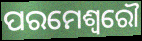
ପରମେଶ୍ଵରୌ